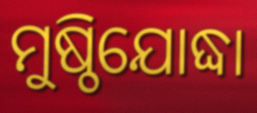
ମୁଷ୍ଠିଯୋଦ୍ଧା